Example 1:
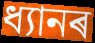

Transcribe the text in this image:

ধ্যানৰ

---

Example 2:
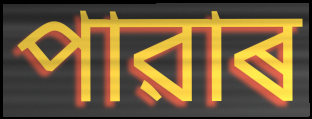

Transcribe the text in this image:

পাৱাৰ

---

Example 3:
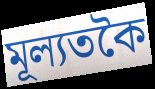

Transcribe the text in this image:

মূল্যতকৈ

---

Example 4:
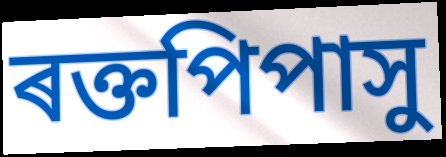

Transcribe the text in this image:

ৰক্তপিপাসু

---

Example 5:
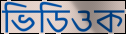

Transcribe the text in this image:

ভিডিওক